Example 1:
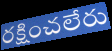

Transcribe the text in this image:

రక్షించలేరు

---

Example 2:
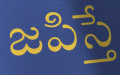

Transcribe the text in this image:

జపిస్తే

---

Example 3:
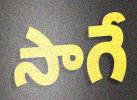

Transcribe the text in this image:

సాగే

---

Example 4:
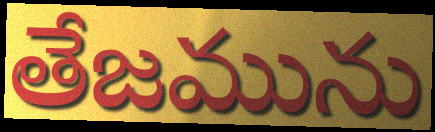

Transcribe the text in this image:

తేజమును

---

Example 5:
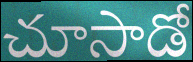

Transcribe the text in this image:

చూసాడో